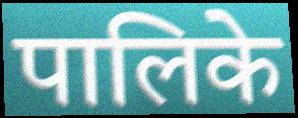
पालिके